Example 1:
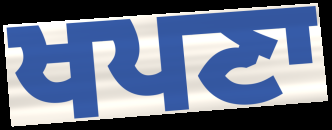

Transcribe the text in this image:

ਖਪਣਾ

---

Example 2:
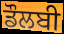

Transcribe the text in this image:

ਡੌਲਬੀ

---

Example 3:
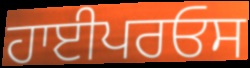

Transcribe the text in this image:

ਹਾਈਪਰਓਸ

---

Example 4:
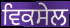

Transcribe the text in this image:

ਵਿਕਸੇਲ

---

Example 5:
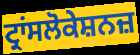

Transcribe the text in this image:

ਟ੍ਰਾਂਸਲੋਕੇਸ਼ਨਜ਼